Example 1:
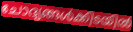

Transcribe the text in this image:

ചോദ്യങ്ങൾക്കിടയിൽ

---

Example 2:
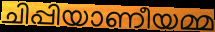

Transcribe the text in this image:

ചിപ്പിയാണീയമ്മ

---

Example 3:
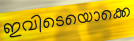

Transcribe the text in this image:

ഇവിടെയൊക്കെ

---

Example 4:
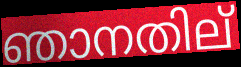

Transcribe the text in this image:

ഞാനതില്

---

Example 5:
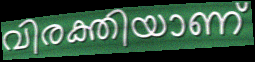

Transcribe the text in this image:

വിരക്തിയാണ്